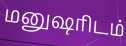
மனுஷரிடம்